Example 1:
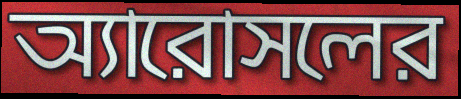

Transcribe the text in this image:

অ্যারোসলের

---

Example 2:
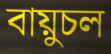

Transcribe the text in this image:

বায়ুচল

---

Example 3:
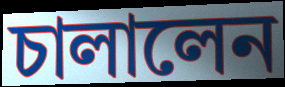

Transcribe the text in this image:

চালালেন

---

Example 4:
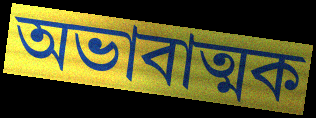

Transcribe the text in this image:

অভাবাত্মক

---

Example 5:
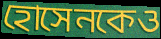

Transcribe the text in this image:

হোসেনকেও